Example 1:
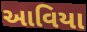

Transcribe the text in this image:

આવિયા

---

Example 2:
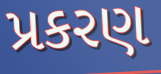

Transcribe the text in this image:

પ્રકરણ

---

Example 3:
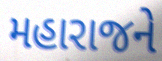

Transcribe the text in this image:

મહારાજને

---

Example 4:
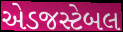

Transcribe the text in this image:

એડજસ્ટેબલ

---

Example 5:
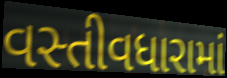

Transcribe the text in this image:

વસ્તીવધારામાં